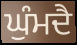
ਘੁੰਮਦੈ